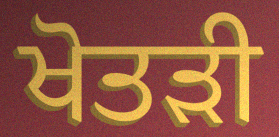
ਖੋਤੜੀ